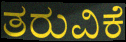
ತರುವಿಕೆ